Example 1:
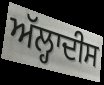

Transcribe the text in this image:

ਅੱਲ੍ਹਾਦੀਸ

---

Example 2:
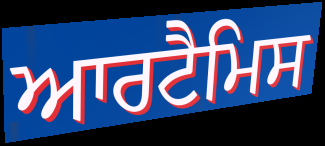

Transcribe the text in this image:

ਆਰਟੈਮਿਸ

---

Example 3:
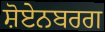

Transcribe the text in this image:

ਸ਼ੋਏਨਬਰਗ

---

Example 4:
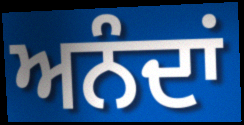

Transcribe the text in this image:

ਅਨੰਦਾਂ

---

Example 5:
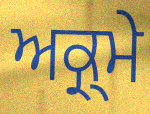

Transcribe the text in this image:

ਅਕ੍ਰ੍ਮੇ